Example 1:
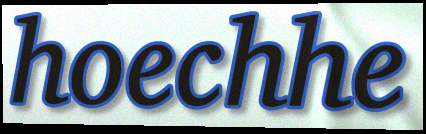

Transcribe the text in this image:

hoechhe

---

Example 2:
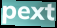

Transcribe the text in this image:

pext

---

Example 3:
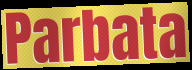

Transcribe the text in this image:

Parbata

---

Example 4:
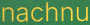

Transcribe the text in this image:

nachnu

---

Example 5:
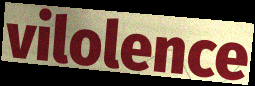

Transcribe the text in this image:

vilolence